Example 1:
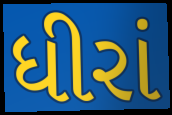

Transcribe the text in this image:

ધીરાં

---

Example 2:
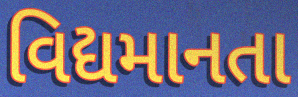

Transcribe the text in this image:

વિદ્યમાનતા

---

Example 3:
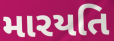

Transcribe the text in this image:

મારયતિ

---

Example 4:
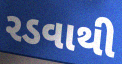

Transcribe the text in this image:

રડવાથી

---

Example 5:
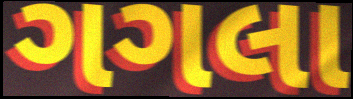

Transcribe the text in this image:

ગગલા